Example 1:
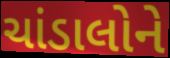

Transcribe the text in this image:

ચાંડાલોને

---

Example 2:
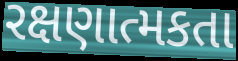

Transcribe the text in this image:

રક્ષણાત્મકતા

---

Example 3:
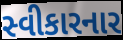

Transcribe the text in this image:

સ્વીકારનાર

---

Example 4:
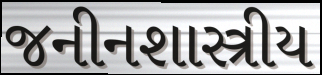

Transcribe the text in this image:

જનીનશાસ્ત્રીય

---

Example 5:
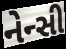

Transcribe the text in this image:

નેન્સી